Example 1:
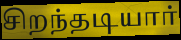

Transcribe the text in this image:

சிறந்தடியார்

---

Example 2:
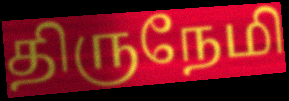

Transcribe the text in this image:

திருநேமி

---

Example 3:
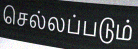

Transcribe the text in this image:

செல்லப்படும்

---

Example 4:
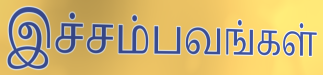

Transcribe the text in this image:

இச்சம்பவங்கள்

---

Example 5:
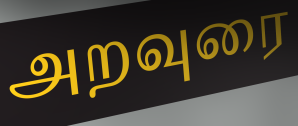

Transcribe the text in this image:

அறவுரை